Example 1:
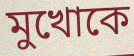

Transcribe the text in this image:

মুখোকে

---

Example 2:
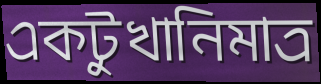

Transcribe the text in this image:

একটুখানিমাত্র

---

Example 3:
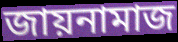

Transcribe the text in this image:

জায়নামাজ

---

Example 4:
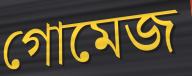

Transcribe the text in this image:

গোমেজ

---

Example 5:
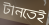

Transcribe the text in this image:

টানতেই